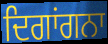
ਦਿਗਾਂਗਨਾ